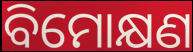
ବିମୋକ୍ଷଣ